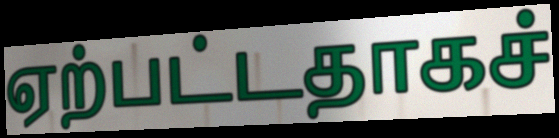
ஏற்பட்டதாகச்